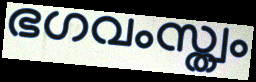
ഭഗവംസ്ത്വം